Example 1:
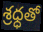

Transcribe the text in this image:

శ్రధ్ధతో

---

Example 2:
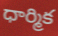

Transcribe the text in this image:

ధార్మిక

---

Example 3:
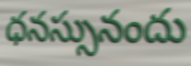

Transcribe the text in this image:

ధనస్సునందు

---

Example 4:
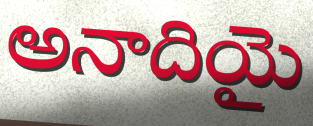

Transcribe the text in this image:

అనాదియై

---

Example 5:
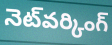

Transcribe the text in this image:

నెట్‌వర్కింగ్